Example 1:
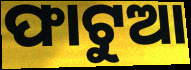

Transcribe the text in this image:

ଫାଟୁଆ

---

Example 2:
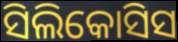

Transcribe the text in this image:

ସିଲିକୋସିସ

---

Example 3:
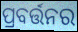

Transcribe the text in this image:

ପ୍ରବର୍ତ୍ତନର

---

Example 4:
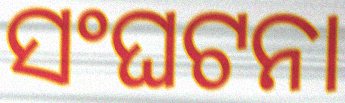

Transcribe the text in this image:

ସଂଘଟନା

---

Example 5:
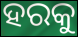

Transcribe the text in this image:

ହରକୁ